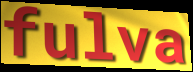
fulva